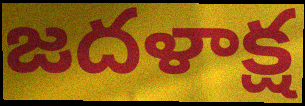
జదళాక్ష